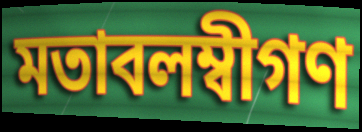
মতাবলম্বীগণ